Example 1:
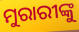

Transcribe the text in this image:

ମୁରାରୀଙ୍କୁ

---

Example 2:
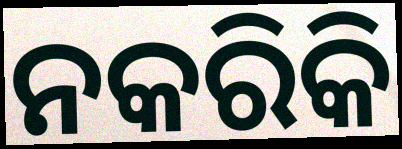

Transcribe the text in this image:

ନକରିକି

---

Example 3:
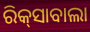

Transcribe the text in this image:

ରିକ୍‌ସାବାଲା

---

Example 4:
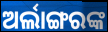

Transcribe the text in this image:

ଅର୍ଲାଙ୍ଗରଙ୍କ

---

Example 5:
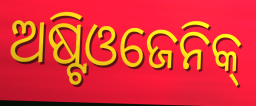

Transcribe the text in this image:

ଅଷ୍ଟିଓଜେନିକ୍